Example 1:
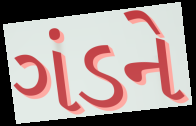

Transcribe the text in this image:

ગંડને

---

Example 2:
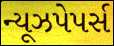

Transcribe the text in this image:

ન્યૂઝપેપર્સ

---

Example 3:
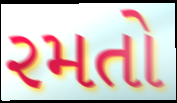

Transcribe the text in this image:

રમતો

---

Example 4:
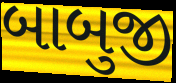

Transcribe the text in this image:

બાબુજી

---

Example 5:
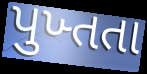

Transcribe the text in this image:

પુખ્તતા